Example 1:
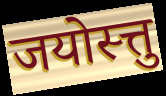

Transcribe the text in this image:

जयोस्त्तु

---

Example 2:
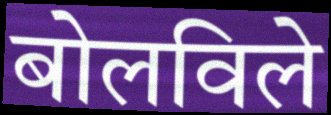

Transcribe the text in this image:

बोलविले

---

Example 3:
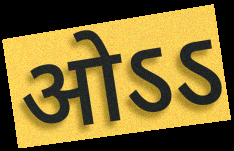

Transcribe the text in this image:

ओऽऽ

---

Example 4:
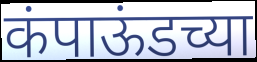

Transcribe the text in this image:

कंपाऊंडच्या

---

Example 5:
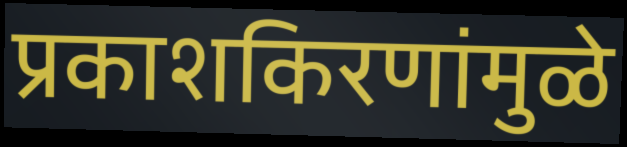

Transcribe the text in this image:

प्रकाशकिरणांमुळे